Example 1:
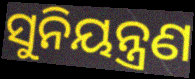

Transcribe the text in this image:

ସୁନିୟନ୍ତ୍ରଣ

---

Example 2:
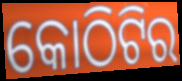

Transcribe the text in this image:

କୋଠିଟିର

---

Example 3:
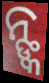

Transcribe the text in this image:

ନ୍ଙ୍କ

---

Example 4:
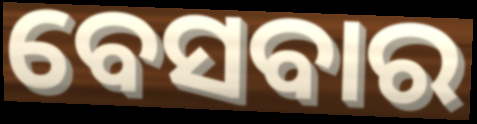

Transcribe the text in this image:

ବେସବାର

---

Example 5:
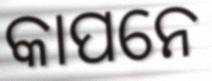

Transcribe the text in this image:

କାପନେ